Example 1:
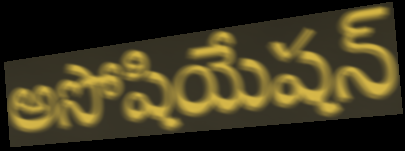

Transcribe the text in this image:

అసోషియేషన్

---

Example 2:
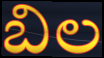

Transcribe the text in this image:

బిల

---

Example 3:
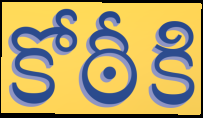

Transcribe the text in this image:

కోఠీకి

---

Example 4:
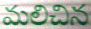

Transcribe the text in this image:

మలిచిన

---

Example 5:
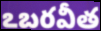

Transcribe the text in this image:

ఽబరవీత